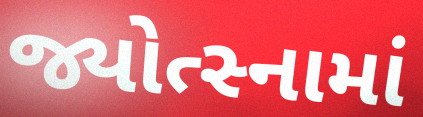
જ્યોત્સ્નામાં